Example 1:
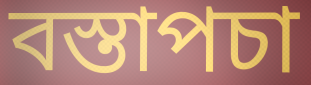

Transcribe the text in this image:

বস্তাপচা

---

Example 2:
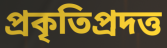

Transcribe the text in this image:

প্রকৃতিপ্রদত্ত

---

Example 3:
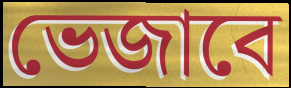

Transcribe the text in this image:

ভেজাবে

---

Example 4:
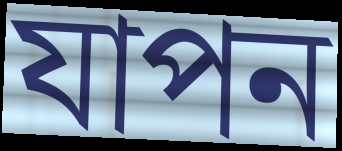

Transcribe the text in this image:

যাপন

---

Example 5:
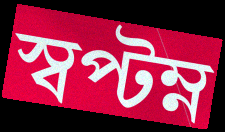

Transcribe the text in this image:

স্বপ্টম্ন